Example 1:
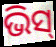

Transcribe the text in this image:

ଭିସ୍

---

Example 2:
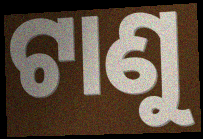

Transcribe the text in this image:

ଟାଣୁ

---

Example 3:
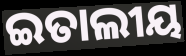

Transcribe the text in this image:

ଇତାଲୀୟ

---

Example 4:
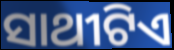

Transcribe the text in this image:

ସାଥୀଟିଏ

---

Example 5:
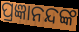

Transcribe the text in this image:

ପ୍ରଜ୍ଞାନନ୍ଦଙ୍କ